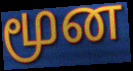
மூன